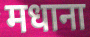
मधाना